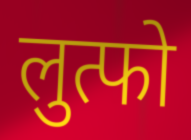
लुत्फो